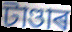
টাণ্ডাৰ